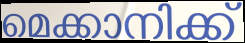
മെക്കാനിക്ക്